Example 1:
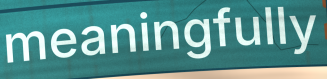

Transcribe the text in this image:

meaningfully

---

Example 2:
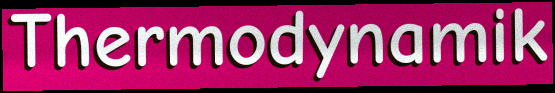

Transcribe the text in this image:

Thermodynamik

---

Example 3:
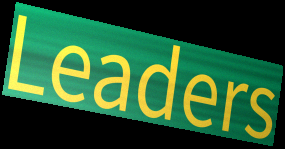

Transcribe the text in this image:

Leaders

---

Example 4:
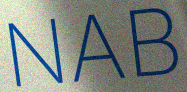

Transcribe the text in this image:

NAB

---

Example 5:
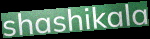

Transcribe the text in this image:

shashikala